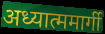
अध्यात्ममार्गी